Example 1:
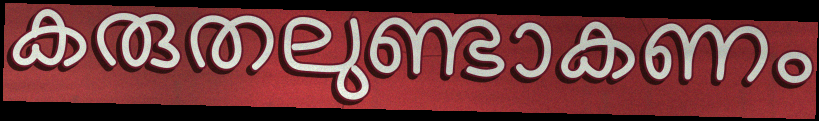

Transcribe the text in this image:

കരുതലുണ്ടാകണം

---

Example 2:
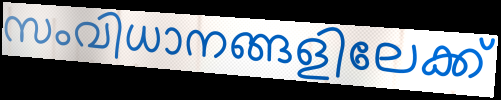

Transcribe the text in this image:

സംവിധാനങ്ങളിലേക്ക്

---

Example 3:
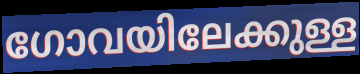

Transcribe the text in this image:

ഗോവയിലേക്കുള്ള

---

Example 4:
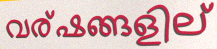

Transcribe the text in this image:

വര്ഷങ്ങളില്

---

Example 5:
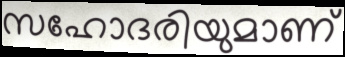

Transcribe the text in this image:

സഹോദരിയുമാണ്